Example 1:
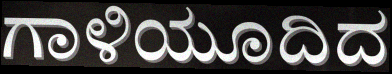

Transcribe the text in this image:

ಗಾಳಿಯೂದಿದ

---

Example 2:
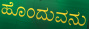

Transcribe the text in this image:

ಹೊಂದುವನು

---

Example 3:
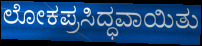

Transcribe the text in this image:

ಲೋಕಪ್ರಸಿದ್ಧವಾಯಿತು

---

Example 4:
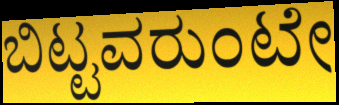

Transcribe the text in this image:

ಬಿಟ್ಟವರುಂಟೇ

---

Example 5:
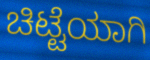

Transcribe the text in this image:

ಚಿಟ್ಟೆಯಾಗಿ